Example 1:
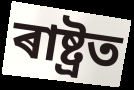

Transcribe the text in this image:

ৰাষ্ট্ৰত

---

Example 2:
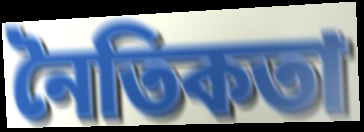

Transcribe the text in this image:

নৈতিকতা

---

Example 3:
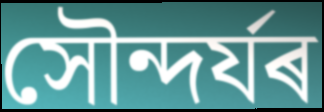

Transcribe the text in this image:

সৌন্দৰ্যৰ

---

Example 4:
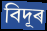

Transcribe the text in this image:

বিদূৰ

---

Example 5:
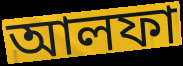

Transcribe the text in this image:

আলফা